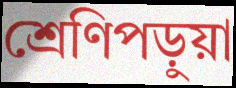
শ্রেণিপড়ুয়া